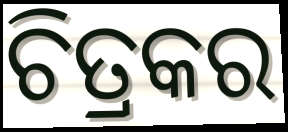
ଚିତ୍ରକର